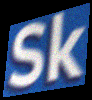
Sk